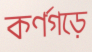
কর্ণগড়ে